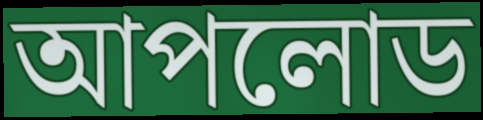
আপলোড